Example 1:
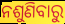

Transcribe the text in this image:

ନଶୁଣିବାରୁ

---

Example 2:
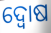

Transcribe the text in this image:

ଦ୍ୱୋଷ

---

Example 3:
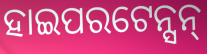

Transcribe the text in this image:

ହାଇପରଟେନ୍ସନ୍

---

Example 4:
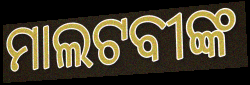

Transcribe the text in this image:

ମାଲଟବୀଙ୍କ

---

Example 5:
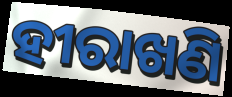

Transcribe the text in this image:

ହୀରାଖଣି